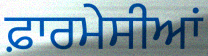
ਫ਼ਾਰਮੇਸੀਆਂ